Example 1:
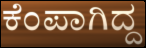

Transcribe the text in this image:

ಕೆಂಪಾಗಿದ್ದ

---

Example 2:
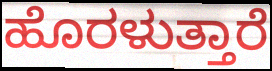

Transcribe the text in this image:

ಹೊರಳುತ್ತಾರೆ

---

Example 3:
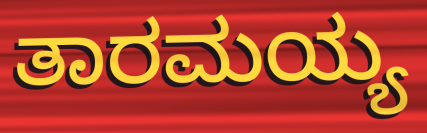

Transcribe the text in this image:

ತಾರಮಯ್ಯ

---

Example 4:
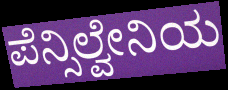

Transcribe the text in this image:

ಪೆನ್ಸಿಲ್ವೇನಿಯ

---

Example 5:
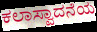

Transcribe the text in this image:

ಕಲಾಸ್ವಾದನೆಯ